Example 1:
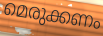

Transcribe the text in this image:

മെരുക്കണം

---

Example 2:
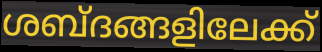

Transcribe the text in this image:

ശബ്ദങ്ങളിലേക്ക്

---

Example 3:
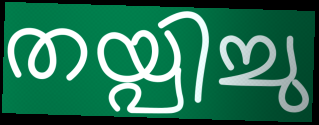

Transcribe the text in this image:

തയ്പിച്ചു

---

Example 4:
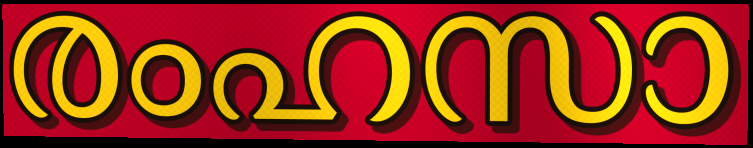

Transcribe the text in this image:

രംഹസാ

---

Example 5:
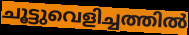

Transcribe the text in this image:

ചൂട്ടുവെളിച്ചത്തിൽ